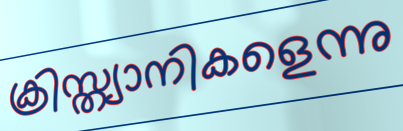
ക്രിസ്ത്യാനികളെന്നു